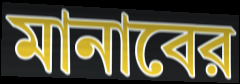
মানাবের